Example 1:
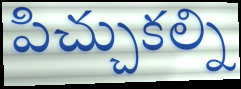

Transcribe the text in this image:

పిచ్చుకల్ని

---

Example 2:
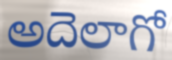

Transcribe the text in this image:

అదెలాగో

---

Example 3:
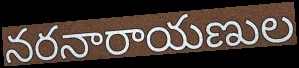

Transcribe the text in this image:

నరనారాయణుల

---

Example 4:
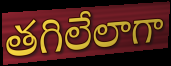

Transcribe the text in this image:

తగిలేలాగా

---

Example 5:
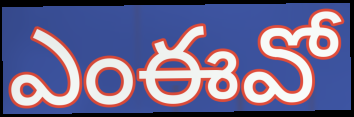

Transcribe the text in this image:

ఎంఈవో